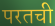
परतची